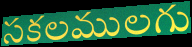
సకలములగు